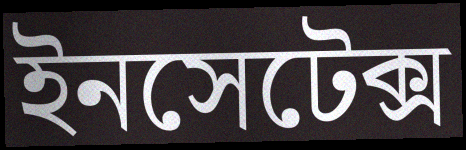
ইনসেটেক্স